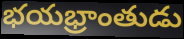
భయభ్రాంతుడు